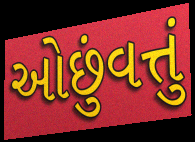
ઓછુંવત્તું